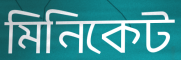
মিনিকেট